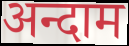
अन्दाम